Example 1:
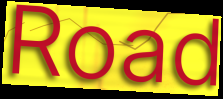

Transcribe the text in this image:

Road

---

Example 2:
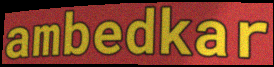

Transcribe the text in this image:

ambedkar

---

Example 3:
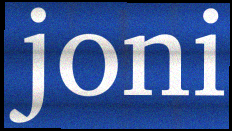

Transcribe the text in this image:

joni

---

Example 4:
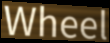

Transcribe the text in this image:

Wheel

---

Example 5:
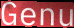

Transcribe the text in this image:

Genu